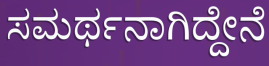
ಸಮರ್ಥನಾಗಿದ್ದೇನೆ